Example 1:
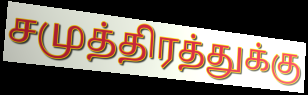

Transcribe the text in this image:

சமுத்திரத்துக்கு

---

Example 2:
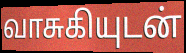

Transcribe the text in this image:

வாசுகியுடன்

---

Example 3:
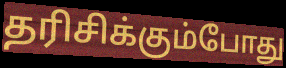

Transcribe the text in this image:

தரிசிக்கும்போது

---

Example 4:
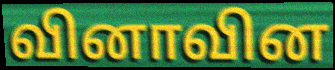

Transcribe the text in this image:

வினாவின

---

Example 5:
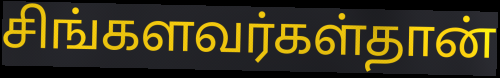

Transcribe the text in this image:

சிங்களவர்கள்தான்